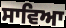
ਸਾਵਿਆ